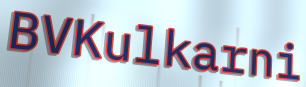
BVKulkarni